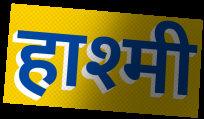
हाश्मी